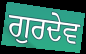
ਗੁਰਦੇਵ